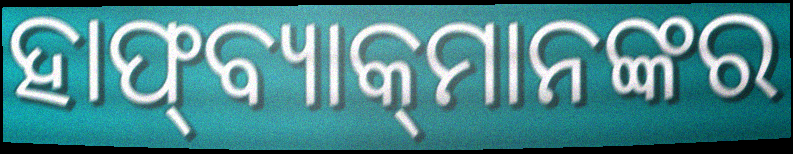
ହାଫ୍‍ବ୍ୟାକ୍‍ମାନଙ୍କର